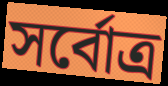
সর্বোত্র